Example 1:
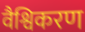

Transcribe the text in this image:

वैश्विकरण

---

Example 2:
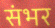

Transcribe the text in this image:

संभर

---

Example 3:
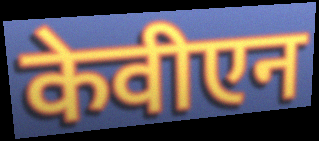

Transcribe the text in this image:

केवीएन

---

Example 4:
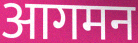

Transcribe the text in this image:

आगमन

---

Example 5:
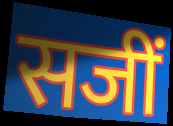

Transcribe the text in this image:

सजीं